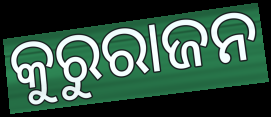
କୁରୁରାଜନ